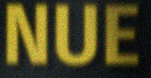
NUE